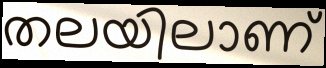
തലയിലാണ്